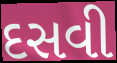
દસવી